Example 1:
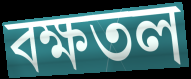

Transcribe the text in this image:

বক্ষতল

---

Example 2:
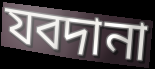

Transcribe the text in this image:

যবদানা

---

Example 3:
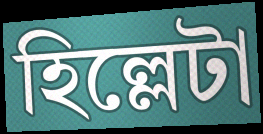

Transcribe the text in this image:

হিল্লেটা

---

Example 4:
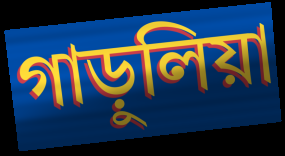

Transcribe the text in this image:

গাড়ুলিয়া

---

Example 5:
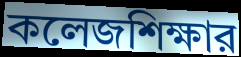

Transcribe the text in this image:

কলেজশিক্ষার